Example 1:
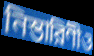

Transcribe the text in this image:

নিস্তারিণীও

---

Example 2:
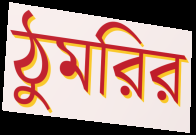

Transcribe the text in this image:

ঠুমরির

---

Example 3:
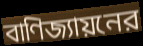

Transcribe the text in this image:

বাণিজ্যায়নের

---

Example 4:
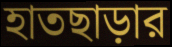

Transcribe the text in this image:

হাতছাড়ার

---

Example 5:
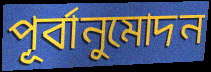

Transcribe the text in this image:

পূর্বানুমোদন